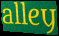
alley